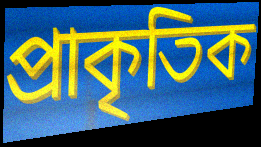
প্রাকৃতিক